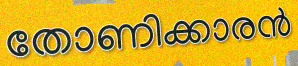
തോണിക്കാരൻ